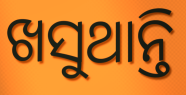
ଖସୁଥାନ୍ତି